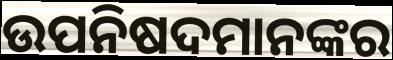
ଉପନିଷଦମାନଙ୍କର